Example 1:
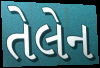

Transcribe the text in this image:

તેલેન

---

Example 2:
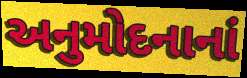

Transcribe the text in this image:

અનુમોદનાનાં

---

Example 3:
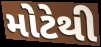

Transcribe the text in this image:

મોટેથી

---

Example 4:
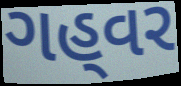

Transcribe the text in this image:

ગહ્‌વર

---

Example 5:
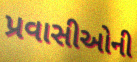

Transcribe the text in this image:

પ્રવાસીઓની